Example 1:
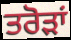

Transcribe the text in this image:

ਤਰੋੜਾਂ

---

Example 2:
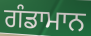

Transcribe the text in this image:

ਗੰਡਾਮਾਨ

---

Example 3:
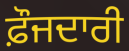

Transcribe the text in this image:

ਫ਼ੌਜਦਾਰੀ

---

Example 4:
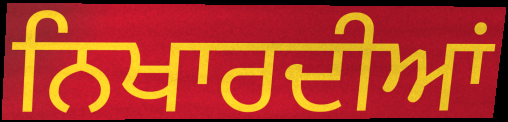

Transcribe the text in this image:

ਨਿਖਾਰਦੀਆਂ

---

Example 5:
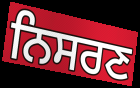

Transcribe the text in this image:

ਨਿਸਰਣ